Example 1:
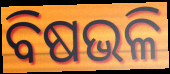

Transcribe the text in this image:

ବିଷଭଳି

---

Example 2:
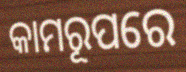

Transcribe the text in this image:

କାମରୂପରେ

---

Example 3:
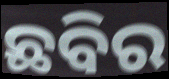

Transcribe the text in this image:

ଛବିର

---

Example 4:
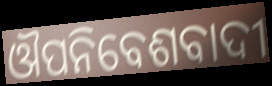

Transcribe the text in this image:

ଔପନିବେଶବାଦୀ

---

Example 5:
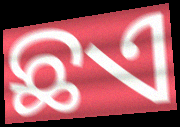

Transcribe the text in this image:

ଛଏ